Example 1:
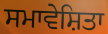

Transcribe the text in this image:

ਸਮਾਵੇਸ਼ਿਤਾ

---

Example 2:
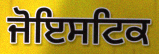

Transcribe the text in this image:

ਜੋਇਸਟਿਕ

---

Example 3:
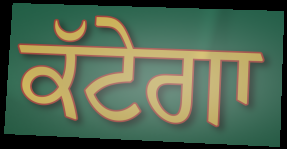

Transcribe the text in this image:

ਕੱਟੇਗਾ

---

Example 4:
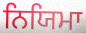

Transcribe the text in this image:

ਨਿਯਿਮਾ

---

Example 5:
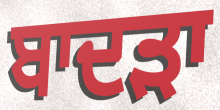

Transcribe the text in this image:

ਬਾਦੜਾ